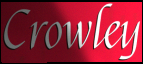
Crowley